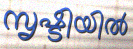
സൃഷ്ടിയിൽ